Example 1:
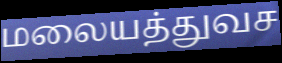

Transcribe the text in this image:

மலையத்துவச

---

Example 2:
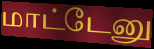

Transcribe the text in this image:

மாட்டேனு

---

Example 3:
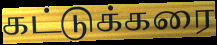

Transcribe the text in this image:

கட்டுக்கரை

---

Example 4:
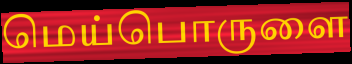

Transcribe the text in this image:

மெய்பொருளை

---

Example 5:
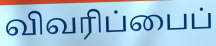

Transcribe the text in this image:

விவரிப்பைப்